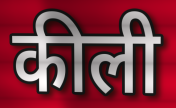
कीली